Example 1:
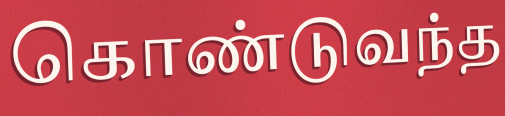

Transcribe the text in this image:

கொண்டுவந்த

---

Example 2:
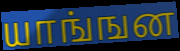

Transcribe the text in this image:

யாங்ஙன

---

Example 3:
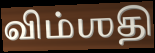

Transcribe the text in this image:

விம்ஶதி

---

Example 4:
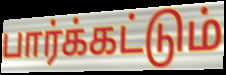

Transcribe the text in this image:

பார்க்கட்டும்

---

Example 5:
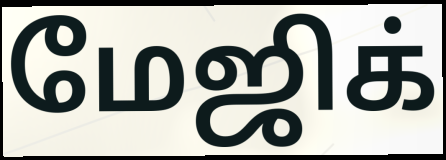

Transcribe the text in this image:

மேஜிக்